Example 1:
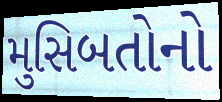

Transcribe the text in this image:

મુસિબતોનો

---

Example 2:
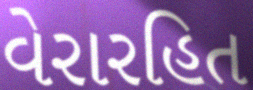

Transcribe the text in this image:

વેરારહિત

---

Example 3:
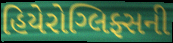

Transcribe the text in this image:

હિયેરોગ્લિફ્સની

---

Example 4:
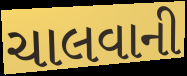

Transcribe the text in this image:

ચાલવાની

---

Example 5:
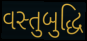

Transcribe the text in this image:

વસ્તુબુદ્ધિ